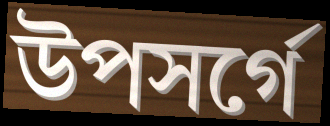
উপসর্গে